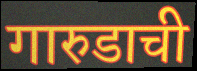
गारुडाची